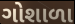
ગોશાળા